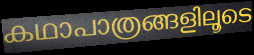
കഥാപാത്രങ്ങളിലൂടെ